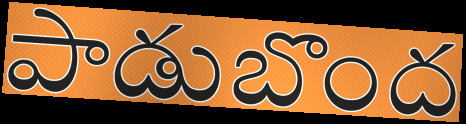
పాడుబొంద